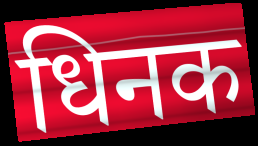
धिनक